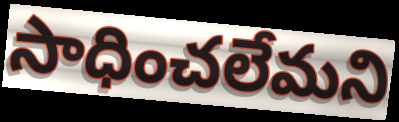
సాధించలేమని